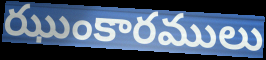
ఝుంకారములు